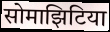
सोमाझिटिया